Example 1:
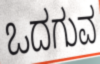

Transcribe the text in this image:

ಒದಗುವ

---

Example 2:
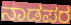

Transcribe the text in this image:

ನಾಡಪರ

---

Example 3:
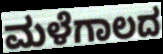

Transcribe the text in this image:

ಮಳೆಗಾಲದ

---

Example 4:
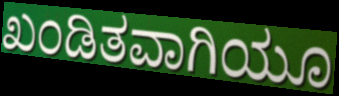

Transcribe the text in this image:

ಖಂಡಿತವಾಗಿಯೂ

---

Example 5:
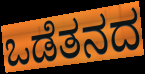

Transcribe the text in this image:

ಒಡೆತನದ